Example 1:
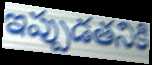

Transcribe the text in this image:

ఇప్పుడతనికి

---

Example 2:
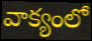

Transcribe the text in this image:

వాక్యంలో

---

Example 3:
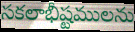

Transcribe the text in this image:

సకలాభీష్టములను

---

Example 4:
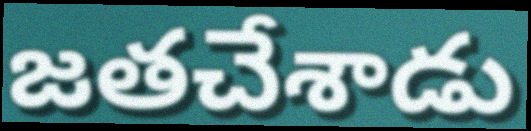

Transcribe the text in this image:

జతచేశాడు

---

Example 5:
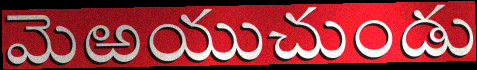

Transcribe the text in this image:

మెఱయుచుండు